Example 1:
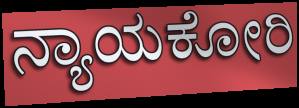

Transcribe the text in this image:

ನ್ಯಾಯಕೋರಿ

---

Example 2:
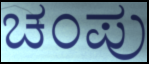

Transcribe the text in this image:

ಚಂಪು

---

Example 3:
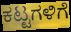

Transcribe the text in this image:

ಕಟ್ಟಗಳಿಗೆ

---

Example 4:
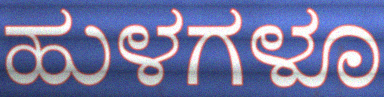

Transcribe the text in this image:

ಹುಳಗಳೂ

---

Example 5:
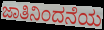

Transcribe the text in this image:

ಜಾತಿನಿಂದನೆಯ